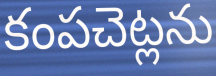
కంపచెట్లను